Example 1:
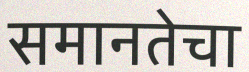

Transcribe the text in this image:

समानतेचा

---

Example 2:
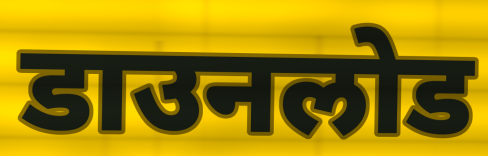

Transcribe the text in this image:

डाउनलोड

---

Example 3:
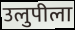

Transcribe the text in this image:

उलुपीला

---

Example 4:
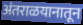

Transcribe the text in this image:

अंतराळयानातून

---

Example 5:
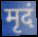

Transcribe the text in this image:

मृदं